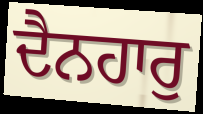
ਦੈਨਹਾਰੁ